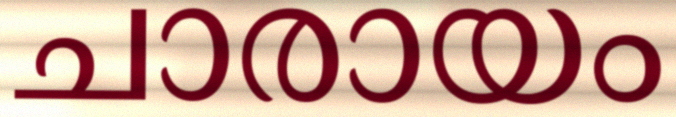
ചാരായം